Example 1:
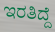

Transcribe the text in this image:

ಇರತಿದ್ದೆ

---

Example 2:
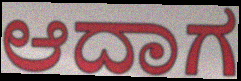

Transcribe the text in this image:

ಆದಾಗ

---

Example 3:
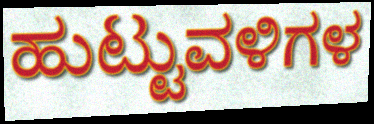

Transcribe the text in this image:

ಹುಟ್ಟುವಳಿಗಳ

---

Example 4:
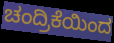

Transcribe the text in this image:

ಚಂದ್ರಿಕೆಯಿಂದ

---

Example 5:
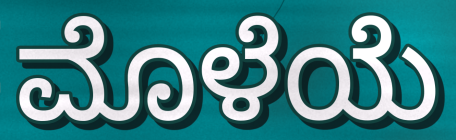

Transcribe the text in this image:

ಮೊಳೆಯೆ